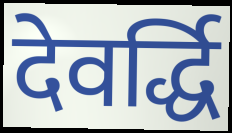
देवर्द्धि